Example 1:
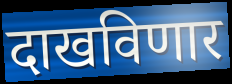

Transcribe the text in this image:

दाखविणार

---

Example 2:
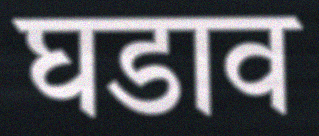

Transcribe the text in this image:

घडाव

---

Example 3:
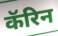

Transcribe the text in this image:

कॅरिन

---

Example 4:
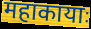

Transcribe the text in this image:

महाकायाः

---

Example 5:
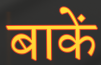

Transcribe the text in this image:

बाकें